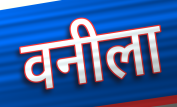
वनीला